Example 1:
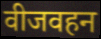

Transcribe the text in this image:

वीजवहन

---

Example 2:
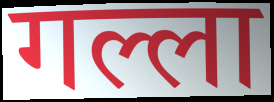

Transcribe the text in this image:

गल्ला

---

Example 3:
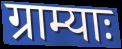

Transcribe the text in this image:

ग्राम्याः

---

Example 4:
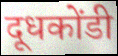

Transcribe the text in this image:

दूधकोंडी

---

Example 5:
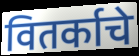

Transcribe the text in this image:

वितर्काचे